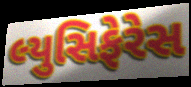
લ્યુસિફેરેસ